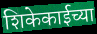
शिकेकाईच्या